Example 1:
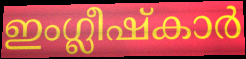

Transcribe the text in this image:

ഇംഗ്ലീഷ്കാർ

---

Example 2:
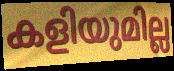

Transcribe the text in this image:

കളിയുമില്ല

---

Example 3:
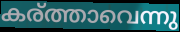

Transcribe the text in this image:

കര്ത്താവെന്നു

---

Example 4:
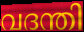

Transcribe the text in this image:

വദന്തി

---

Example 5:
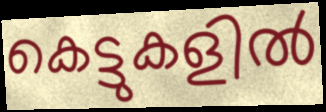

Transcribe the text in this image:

കെട്ടുകളിൽ